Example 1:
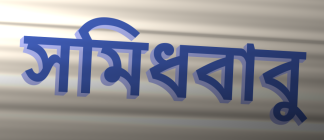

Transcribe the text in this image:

সমিধবাবু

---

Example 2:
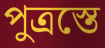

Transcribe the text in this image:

পুত্রস্তে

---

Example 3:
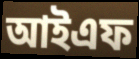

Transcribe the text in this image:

আইএফ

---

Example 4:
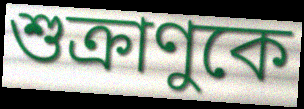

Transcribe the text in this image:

শুক্রাণুকে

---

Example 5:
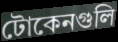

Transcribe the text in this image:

টোকেনগুলি